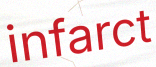
infarct